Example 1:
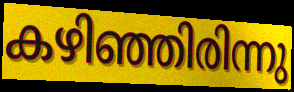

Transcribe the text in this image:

കഴിഞ്ഞിരിന്നു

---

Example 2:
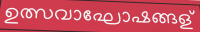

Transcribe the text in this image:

ഉത്സവാഘോഷങ്ങള്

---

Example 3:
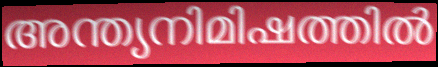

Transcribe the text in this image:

അന്ത്യനിമിഷത്തിൽ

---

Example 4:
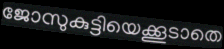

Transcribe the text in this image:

ജോസുകുട്ടിയെക്കൂടാതെ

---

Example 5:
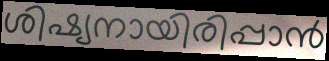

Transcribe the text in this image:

ശിഷ്യനായിരിപ്പാൻ